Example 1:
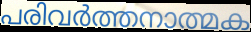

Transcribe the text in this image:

പരിവർത്തനാത്മക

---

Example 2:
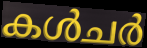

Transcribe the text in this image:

കൾചർ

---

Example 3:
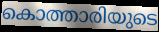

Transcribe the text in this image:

കൊത്താരിയുടെ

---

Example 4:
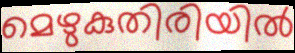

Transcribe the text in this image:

മെഴുകുതിരിയിൽ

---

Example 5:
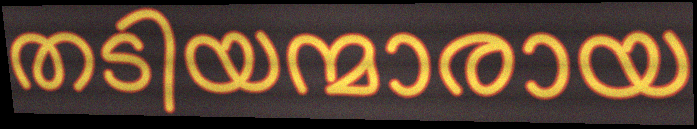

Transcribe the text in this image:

തടിയന്മാരായ